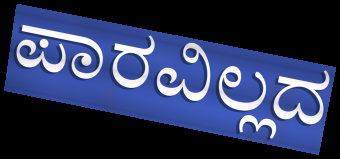
ಪಾರವಿಲ್ಲದ